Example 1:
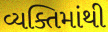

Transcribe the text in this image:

વ્યક્તિમાંથી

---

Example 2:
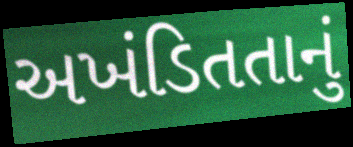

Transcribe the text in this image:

અખંડિતતાનું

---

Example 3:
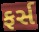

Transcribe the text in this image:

ફર્સ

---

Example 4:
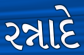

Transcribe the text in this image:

રન્નાદે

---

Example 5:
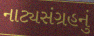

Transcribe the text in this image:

નાટ્યસંગ્રહનું